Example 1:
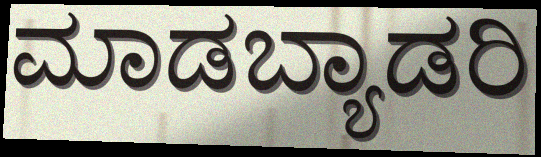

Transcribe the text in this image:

ಮಾಡಬ್ಯಾಡರಿ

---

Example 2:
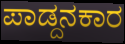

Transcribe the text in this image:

ಪಾಡ್ದನಕಾರ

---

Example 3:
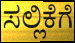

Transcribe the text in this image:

ಸಲ್ಲಿಕೆಗೆ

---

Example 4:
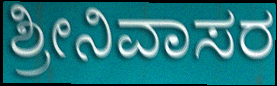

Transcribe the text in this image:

ಶ್ರೀನಿವಾಸರ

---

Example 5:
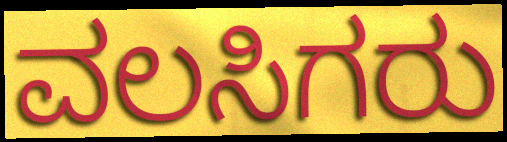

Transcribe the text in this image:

ವಲಸಿಗರು